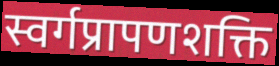
स्वर्गप्रापणशक्ति